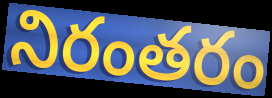
నిరంతరం